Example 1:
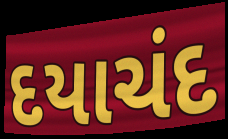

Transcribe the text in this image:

દયાચંદ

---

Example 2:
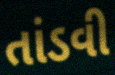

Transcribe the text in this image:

તાંડવી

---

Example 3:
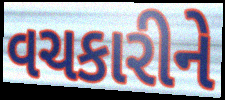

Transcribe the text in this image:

વચકારીને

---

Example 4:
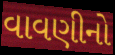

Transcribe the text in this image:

વાવણીનો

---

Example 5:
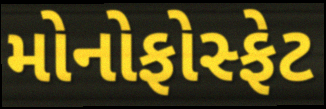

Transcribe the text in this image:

મોનોફોસ્ફેટ